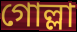
গোল্লা